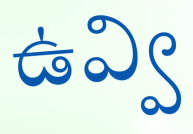
ఉవ్వి